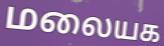
மலையக